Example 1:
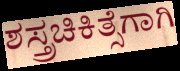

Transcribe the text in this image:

ಶಸ್ತ್ರಚಿಕಿತ್ಸೆಗಾಗಿ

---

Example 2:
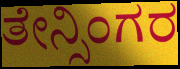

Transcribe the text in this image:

ತೇನ್ಸಿಂಗರ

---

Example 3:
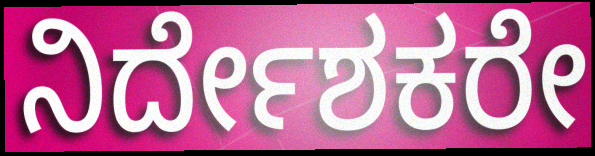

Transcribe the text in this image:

ನಿರ್ದೇಶಕರೇ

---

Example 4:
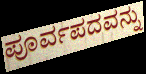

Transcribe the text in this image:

ಪೂರ್ವಪದವನ್ನು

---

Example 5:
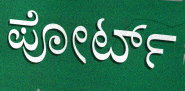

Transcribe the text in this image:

ಪೋರ್ಟ್